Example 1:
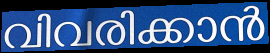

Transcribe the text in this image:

വിവരിക്കാൻ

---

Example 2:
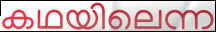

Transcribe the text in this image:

കഥയിലെന്ന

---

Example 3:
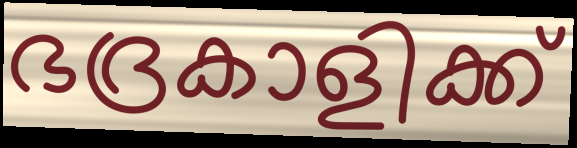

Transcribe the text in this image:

ഭദ്രകാളിക്ക്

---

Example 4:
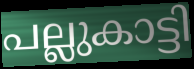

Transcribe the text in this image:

പല്ലുകാട്ടി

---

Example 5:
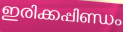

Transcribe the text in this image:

ഇരിക്കപ്പിണ്ഡം